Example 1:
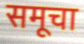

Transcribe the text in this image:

समूचा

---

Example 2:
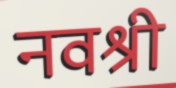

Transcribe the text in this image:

नवश्री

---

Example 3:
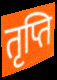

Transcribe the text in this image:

तृप्ति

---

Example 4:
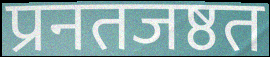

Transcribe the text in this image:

प्रनतजष्ठत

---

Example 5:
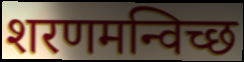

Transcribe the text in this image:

शरणमन्विच्छ